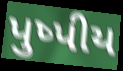
પુષ્પીય